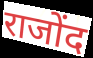
राजोंद